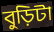
বুড়িটা